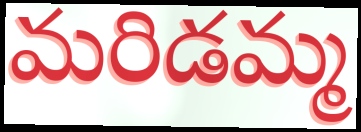
మరిడమ్మ